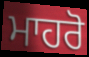
ਮਾਹਰੋ